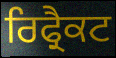
ਰਿਫ੍ਰੈਕਟ